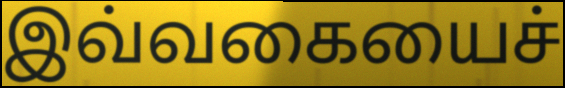
இவ்வகையைச்